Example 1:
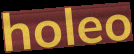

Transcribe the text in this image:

holeo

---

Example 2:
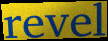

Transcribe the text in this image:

revel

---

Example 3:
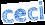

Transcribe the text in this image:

ceci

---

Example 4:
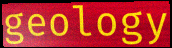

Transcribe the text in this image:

geology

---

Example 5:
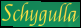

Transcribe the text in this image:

Schygulla